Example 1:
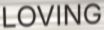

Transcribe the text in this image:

LOVING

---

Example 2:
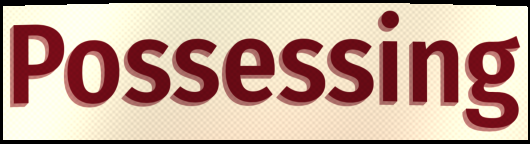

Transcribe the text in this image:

Possessing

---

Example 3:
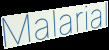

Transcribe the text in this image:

Malarial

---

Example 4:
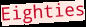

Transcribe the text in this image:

Eighties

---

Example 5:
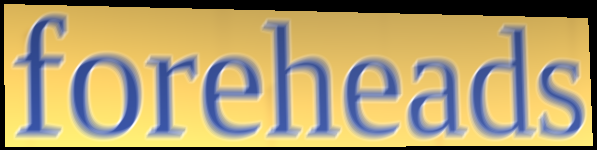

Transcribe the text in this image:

foreheads